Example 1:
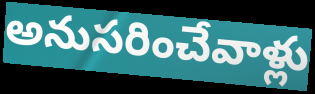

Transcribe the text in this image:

అనుసరించేవాళ్లు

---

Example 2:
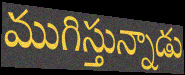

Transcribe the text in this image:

ముగిస్తున్నాడు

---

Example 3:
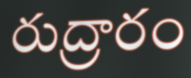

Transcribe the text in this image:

రుద్రారం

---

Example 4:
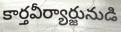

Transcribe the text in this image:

కార్తవీర్యార్జునుడి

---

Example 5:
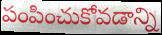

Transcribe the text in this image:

పంపించుకోవడాన్ని